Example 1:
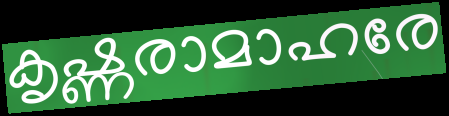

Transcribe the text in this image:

കൃഷ്ണരാമാഹരേ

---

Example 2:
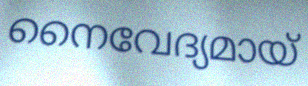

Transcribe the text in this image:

നൈവേദ്യമായ്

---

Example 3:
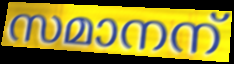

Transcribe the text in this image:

സമാനന്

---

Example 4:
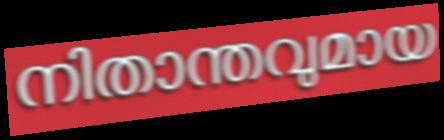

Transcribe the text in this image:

നിതാന്തവുമായ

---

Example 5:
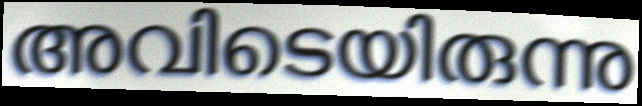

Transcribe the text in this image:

അവിടെയിരുന്നു